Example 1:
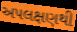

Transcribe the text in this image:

અપલક્ષણથી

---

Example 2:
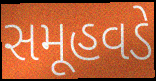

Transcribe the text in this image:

સમૂહવડે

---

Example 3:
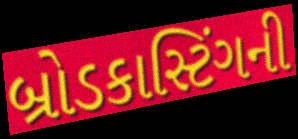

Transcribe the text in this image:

બ્રોડકાસ્ટિંગની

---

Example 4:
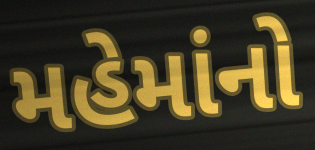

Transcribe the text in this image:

મહેમાંનો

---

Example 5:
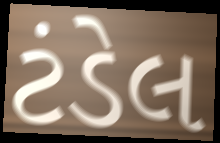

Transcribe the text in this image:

ટંડેલ